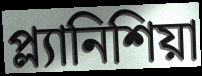
প্ল্যানিশিয়া